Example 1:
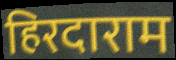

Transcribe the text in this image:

हिरदाराम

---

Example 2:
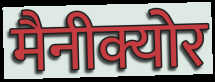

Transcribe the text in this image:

मैनीक्योर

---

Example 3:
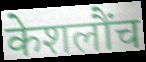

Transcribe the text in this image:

केशलौंच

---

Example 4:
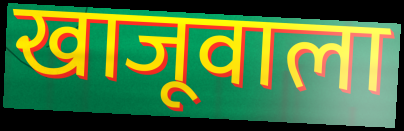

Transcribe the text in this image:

खाजूवाला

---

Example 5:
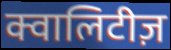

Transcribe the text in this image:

क्वालिटीज़